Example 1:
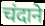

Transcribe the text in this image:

चंदाने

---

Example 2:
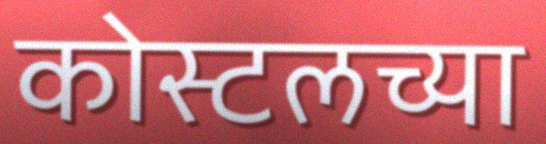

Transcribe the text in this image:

कोस्टलच्या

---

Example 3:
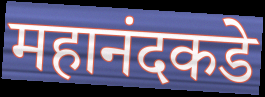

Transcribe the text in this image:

महानंदकडे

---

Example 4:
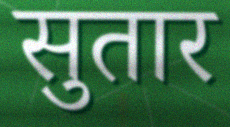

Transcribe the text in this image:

सुतार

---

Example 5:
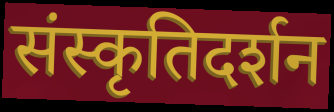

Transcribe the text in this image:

संस्कृतिदर्शन